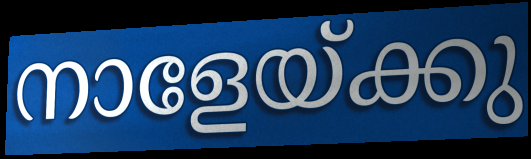
നാളേയ്ക്കു